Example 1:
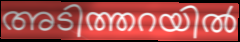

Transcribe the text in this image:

അടിത്തറയിൽ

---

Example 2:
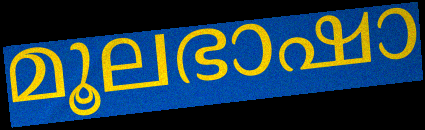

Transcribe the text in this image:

മൂലഭാഷാ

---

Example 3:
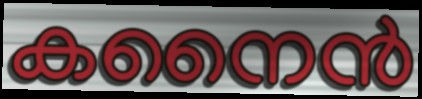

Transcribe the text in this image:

കനൈൻ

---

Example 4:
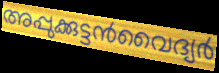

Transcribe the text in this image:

അപ്പുക്കുട്ടൻവൈദ്യർ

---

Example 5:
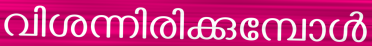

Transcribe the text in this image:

വിശന്നിരിക്കുമ്പോൾ